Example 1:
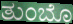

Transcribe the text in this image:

ತುಂಬೊ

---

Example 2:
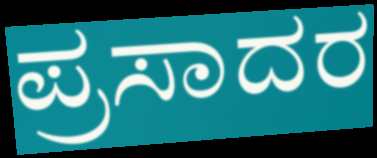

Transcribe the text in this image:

ಪ್ರಸಾದರ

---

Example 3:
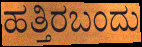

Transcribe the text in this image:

ಹತ್ತಿರಬಂದು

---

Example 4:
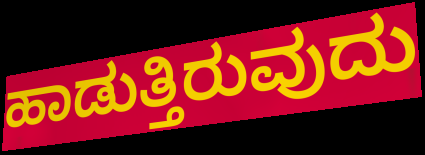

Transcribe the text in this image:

ಹಾಡುತ್ತಿರುವುದು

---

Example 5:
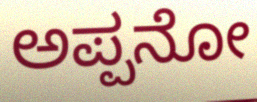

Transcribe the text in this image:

ಅಪ್ಪನೋ